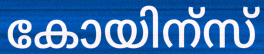
കോയിന്സ്